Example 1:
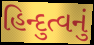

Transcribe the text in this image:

હિન્દુત્વનું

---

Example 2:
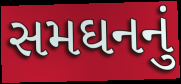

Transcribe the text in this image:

સમઘનનું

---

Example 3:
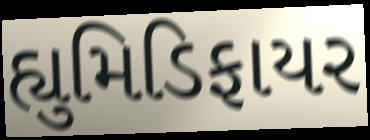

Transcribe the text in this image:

હ્યુમિડિફાયર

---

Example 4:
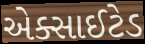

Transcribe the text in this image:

એક્સાઈટેડ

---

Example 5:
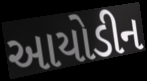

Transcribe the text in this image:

આયોડીન